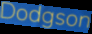
Dodgson